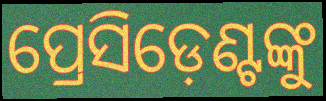
ପ୍ରେସିଡ଼େଣ୍ଟଙ୍କୁ